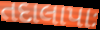
તદાલાપાઃ